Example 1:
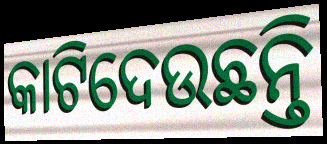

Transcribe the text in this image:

କାଟିଦେଉଛନ୍ତି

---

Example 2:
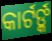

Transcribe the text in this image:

କାର୍ଟର୍ଙ୍କ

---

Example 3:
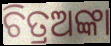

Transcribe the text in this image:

ଚିତ୍ରଅଙ୍କା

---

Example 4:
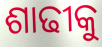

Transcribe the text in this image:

ଶାଢୀକୁ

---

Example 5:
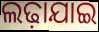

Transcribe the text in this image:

ଲଢ଼ାଯାଇ